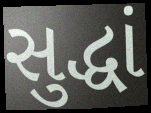
સુદ્ધાં